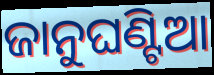
ଜାନୁଘଣ୍ଟିଆ